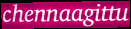
chennaagittu